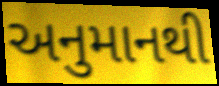
અનુમાનથી